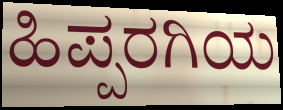
ಹಿಪ್ಪರಗಿಯ